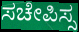
ಸಚೇಪಿಸ್ಸ